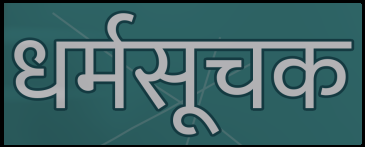
धर्मसूचक